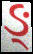
ઙ્